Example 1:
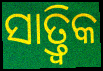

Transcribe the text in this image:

ସାତ୍ତ୍ବିକ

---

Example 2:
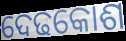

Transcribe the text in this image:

ଦେଢକୋଶ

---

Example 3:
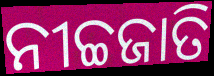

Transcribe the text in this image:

ନୀଚ୍ଚଜାତି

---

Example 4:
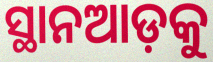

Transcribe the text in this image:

ସ୍ଥାନଆଡ଼କୁ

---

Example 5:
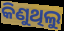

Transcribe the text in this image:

କିଣୁଥିଲୁ